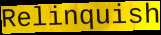
Relinquish